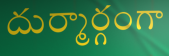
దుర్మార్గంగా